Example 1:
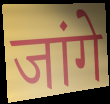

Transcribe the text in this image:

जांगे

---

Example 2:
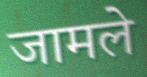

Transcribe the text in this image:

जामले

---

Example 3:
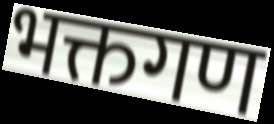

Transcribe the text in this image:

भक्तगण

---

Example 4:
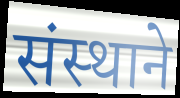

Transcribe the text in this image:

संस्थाने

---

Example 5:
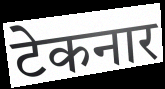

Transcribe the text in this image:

टेकनार